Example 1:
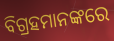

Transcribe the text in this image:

ବିଗ୍ରହମାନଙ୍କରେ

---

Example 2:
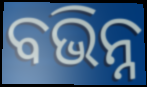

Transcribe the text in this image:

ବଭିନ୍ନ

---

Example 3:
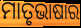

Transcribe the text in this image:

ମାତୃଭାଷାର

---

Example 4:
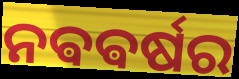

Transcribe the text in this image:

ନଵଵର୍ଷର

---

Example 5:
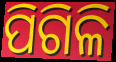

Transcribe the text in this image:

ପିଗିଳି